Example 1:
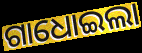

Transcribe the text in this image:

ଗାଧୋଇଲା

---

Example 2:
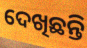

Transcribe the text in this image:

ଦେଖିଛନ୍ତି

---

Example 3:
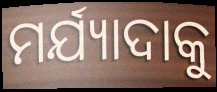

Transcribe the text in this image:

ମର୍ଯ୍ୟାଦାକୁ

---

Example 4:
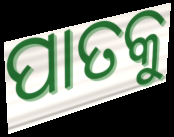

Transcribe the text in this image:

ପାତକୁ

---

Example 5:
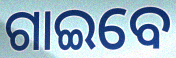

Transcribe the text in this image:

ଗାଇବେ